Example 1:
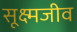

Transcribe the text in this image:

सूक्ष्मजीव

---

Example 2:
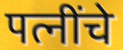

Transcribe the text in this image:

पत्नींचे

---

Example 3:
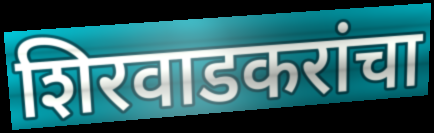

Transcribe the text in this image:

शिरवाडकरांचा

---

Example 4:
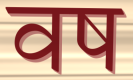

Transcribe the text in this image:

वष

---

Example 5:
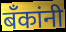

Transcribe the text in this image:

बॅंकांनी